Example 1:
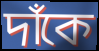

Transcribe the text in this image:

দাঁকে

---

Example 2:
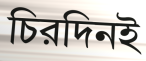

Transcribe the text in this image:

চিরদিনই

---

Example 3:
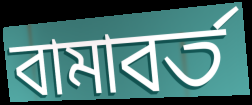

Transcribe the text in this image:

বামাবর্ত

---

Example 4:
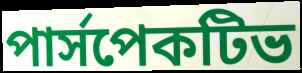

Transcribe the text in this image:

পার্সপেকটিভ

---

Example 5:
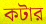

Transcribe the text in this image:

কটার